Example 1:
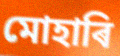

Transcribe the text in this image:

মোহাৰি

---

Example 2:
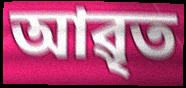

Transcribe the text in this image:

আৱৃত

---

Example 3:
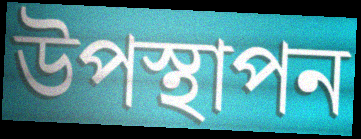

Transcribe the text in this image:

উপস্থাপন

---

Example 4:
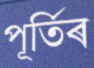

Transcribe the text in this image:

পূৰ্তিৰ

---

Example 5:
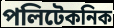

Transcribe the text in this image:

পলিটেকনিক